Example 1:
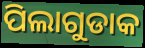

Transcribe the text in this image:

ପିଲାଗୁଡାକ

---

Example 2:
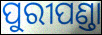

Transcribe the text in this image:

ପୁରୀପଣ୍ଡା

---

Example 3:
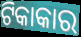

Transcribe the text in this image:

ଟିକାକାର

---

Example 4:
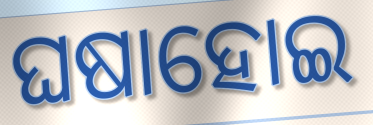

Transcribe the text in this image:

ଘଷାହୋଇ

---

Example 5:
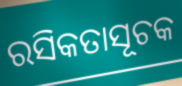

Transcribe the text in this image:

ରସିକତାସୂଚକ